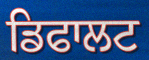
ਡਿਫਾਲਟ